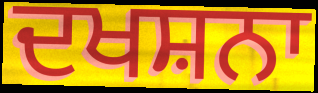
ਦਖਸ਼ਨਾ